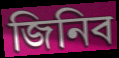
জিনিব